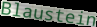
Blaustein